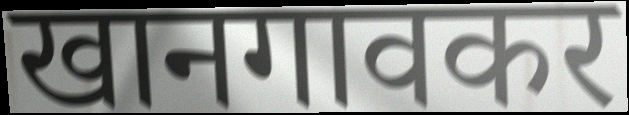
खानगावकर